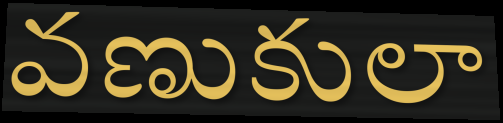
వణుకులా